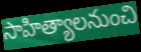
సాహిత్యాలనుంచి